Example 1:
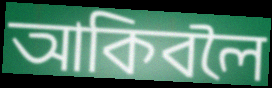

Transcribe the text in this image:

আকিবলৈ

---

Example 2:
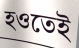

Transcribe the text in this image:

হওতেই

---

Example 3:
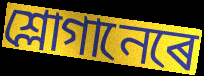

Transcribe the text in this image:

শ্লোগানেৰে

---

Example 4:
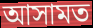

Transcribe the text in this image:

আসামত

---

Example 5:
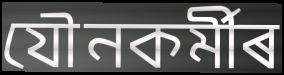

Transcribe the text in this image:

যৌনকৰ্মীৰ